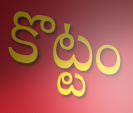
కొట్టం